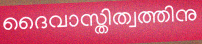
ദൈവാസ്തിത്വത്തിനു